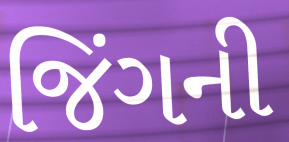
જિંગની